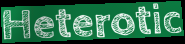
Heterotic